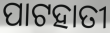
ପାଟହାତୀ